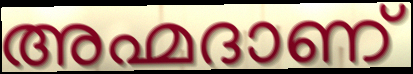
അഹ്മദാണ്